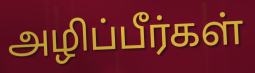
அழிப்பீர்கள்